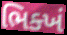
ભિક્ખં